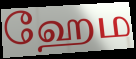
ஹேம